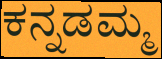
ಕನ್ನಡಮ್ಮ